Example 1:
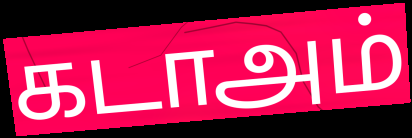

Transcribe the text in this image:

கடாஅம்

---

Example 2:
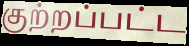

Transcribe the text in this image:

குற்றப்பட்ட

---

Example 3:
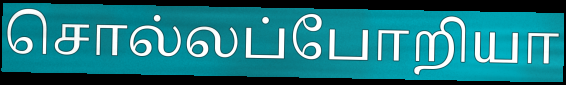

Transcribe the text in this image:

சொல்லப்போறியா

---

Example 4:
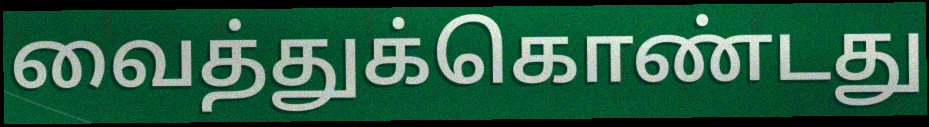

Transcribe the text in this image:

வைத்துக்கொண்டது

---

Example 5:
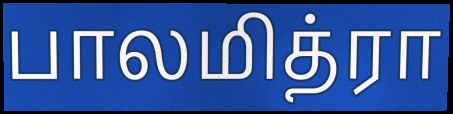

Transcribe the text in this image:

பாலமித்ரா